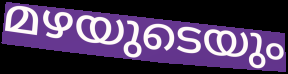
മഴയുടെയും